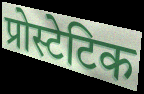
प्रोस्टेटिक